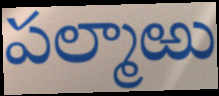
పల్మాఱు